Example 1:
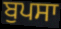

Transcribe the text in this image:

ਬੁਪਸਾ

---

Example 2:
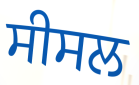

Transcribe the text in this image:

ਸੀਸਲ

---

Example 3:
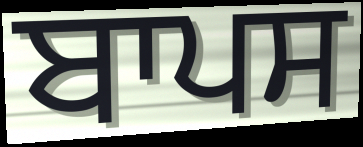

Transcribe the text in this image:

ਬਾਪਸ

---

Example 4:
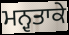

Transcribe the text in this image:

ਮਨ੍ਦਤਾਕੇ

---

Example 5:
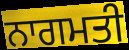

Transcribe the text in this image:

ਨਾਗਮਤੀ